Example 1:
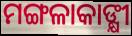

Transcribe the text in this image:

ମଙ୍ଗଳାକାଙ୍କ୍ଷୀ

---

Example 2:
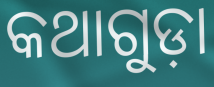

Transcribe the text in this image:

କଥାଗୁଡ଼ା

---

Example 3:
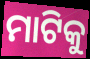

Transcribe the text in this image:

ମାଟିକୁ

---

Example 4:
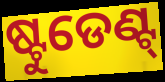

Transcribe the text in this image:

ଷ୍ଟୁଡେଣ୍ଟ୍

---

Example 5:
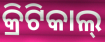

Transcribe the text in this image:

କ୍ରିଟିକାଲ୍